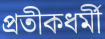
প্রতীকধর্মী